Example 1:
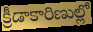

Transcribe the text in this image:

క్రీడాకారిణుల్లో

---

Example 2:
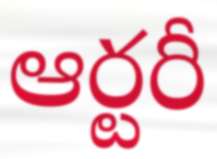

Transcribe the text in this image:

ఆర్టరీ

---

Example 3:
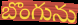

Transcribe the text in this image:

బొంగును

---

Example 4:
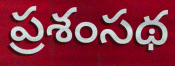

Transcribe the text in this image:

ప్రశంసథ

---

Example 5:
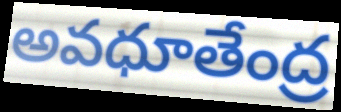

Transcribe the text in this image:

అవధూతేంద్ర